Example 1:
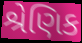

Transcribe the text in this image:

શ્રેણિક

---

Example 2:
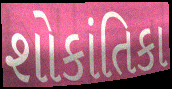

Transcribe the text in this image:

શોકાંતિકા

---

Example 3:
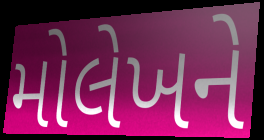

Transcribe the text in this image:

મોલેખને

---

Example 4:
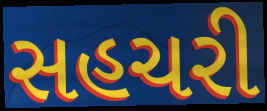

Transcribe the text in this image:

સહચરી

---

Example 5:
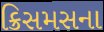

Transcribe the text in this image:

ક્રિસમસના